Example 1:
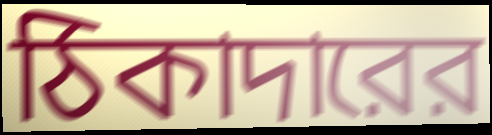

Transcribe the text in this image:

ঠিকাদারের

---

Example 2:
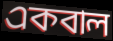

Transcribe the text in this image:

একবাল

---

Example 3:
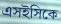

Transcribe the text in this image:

এসইসিকে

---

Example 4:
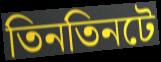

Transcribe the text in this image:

তিনতিনটে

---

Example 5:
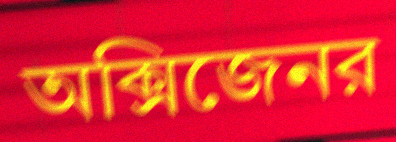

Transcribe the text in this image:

অক্সিজেনর